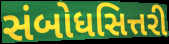
સંબોધસિત્તરી